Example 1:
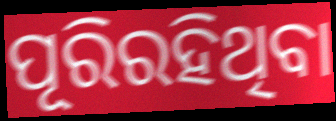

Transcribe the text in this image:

ପୂରିରହିଥିବା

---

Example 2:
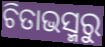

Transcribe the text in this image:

ଚିତାଭସ୍ମରୁ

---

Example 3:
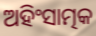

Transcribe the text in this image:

ଅହିଂସାତ୍ମକ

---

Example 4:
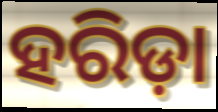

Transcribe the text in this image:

ହରିଡ଼ା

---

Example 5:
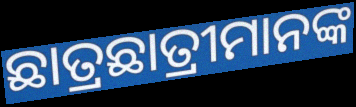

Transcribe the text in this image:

ଛାତ୍ରଛାତ୍ରୀମାନଙ୍କ